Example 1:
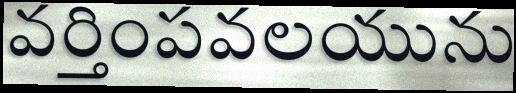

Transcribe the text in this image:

వర్తింపవలయును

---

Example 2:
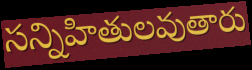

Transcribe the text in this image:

సన్నిహితులవుతారు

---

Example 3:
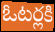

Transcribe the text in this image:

ఓటర్లకి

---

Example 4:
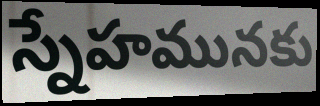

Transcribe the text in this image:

స్నేహమునకు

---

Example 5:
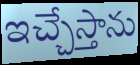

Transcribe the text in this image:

ఇచ్చేస్తాను